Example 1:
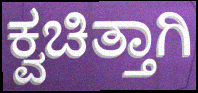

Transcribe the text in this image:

ಕ್ವಚಿತ್ತಾಗಿ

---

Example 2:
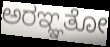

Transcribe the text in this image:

ಅರಞ್ಞತೋ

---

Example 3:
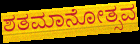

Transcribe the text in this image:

ಶತಮಾನೋತ್ಸವ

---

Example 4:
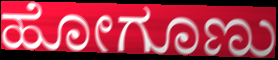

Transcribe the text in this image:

ಹೋಗೂಣು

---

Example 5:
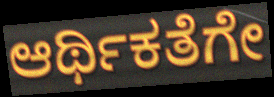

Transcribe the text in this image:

ಆರ್ಥಿಕತೆಗೇ